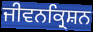
ਜੀਵਨਕ੍ਰਿਸ਼ਨ